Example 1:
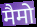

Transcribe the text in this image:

मैमो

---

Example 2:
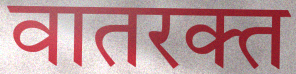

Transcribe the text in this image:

वातरक्त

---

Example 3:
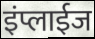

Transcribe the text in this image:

इंप्लाईज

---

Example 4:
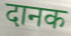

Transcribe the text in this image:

दानक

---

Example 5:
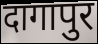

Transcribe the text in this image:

दागापुर